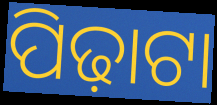
ପିଢ଼ାଟା